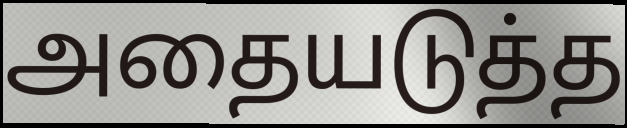
அதையடுத்த